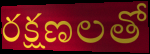
రక్షణలతో